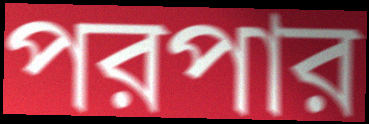
পরপার